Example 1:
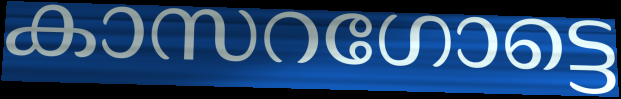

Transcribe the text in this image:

കാസറഗോട്ടെ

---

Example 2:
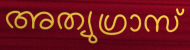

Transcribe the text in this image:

അത്യുഗ്രാസ്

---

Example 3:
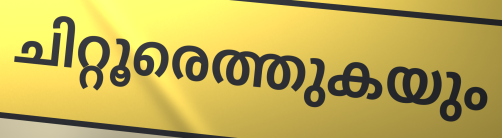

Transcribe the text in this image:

ചിറ്റൂരെത്തുകയും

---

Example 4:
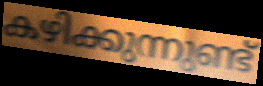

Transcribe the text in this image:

കഴിക്കുന്നുണ്ട്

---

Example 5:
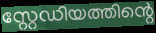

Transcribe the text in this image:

സ്റ്റേഡിയത്തിന്റെ